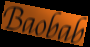
Baobab